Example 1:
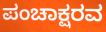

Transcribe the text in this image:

ಪಂಚಾಕ್ಷರವ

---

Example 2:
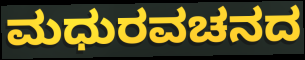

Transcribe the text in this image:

ಮಧುರವಚನದ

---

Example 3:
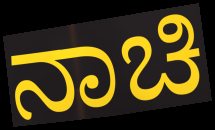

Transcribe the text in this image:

ನಾಚಿ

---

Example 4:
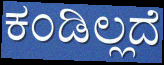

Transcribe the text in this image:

ಕಂಡಿಲ್ಲದೆ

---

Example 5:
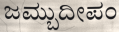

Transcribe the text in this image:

ಜಮ್ಬುದೀಪಂ